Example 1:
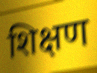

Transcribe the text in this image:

शिक्षण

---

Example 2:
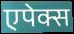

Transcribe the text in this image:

एपेक्स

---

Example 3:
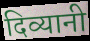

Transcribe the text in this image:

दिव्यानी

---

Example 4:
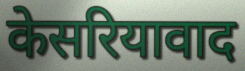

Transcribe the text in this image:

केसरियावाद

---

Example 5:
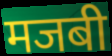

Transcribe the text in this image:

मजबी